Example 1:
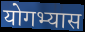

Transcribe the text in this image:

योगभ्यास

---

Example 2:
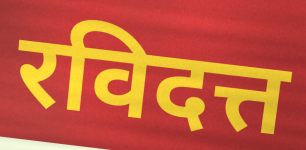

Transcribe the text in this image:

रविदत्त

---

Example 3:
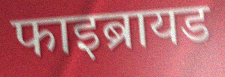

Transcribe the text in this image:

फाइब्रायड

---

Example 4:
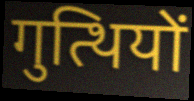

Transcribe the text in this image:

गुत्थियों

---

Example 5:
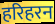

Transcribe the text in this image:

हरिहरन